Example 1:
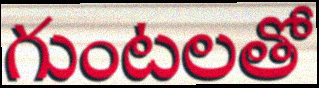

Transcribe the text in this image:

గుంటలతో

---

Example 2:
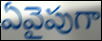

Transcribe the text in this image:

ఏవైపుగా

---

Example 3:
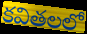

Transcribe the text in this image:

కవితలలో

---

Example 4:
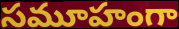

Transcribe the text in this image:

సమూహంగా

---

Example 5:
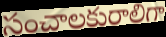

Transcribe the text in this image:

సంచాలకురాలిగా